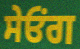
ਸੇਓਂਗ